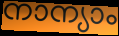
നാന്യാം